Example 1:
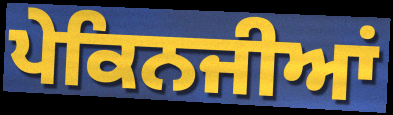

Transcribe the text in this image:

ਪੇਕਿਨਜੀਆਂ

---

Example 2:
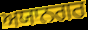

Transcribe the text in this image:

ਅਯਾਨਗਰ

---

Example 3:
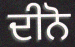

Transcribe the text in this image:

ਦੀਨੋ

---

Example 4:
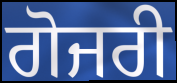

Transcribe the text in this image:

ਗੋਜਰੀ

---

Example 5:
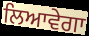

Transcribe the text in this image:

ਲਿਆਵੇਗਾ